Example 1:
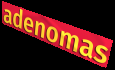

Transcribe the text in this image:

adenomas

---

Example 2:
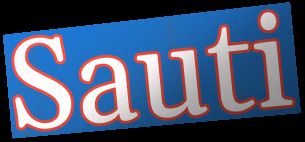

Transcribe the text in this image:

Sauti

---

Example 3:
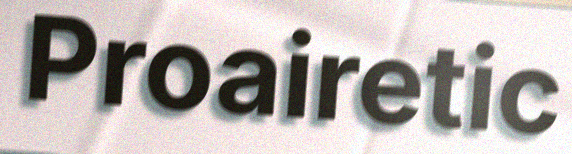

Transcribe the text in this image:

Proairetic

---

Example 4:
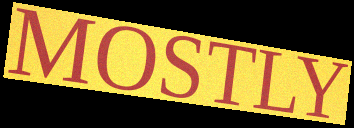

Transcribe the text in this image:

MOSTLY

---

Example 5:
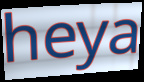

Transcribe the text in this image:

heya